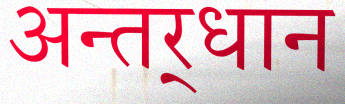
अन्तर्धान